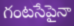
గంటసేపైనా